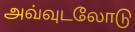
அவ்வுடலோடு